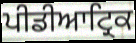
ਪੀਡੀਆਟ੍ਰਿਕ